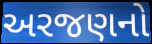
અરજણનો